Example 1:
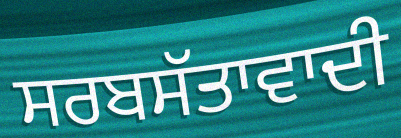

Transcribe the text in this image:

ਸਰਬਸੱਤਾਵਾਦੀ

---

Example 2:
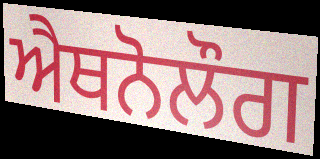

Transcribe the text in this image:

ਐਥਨੋਲੌਗ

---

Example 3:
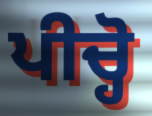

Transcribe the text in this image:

ਪੀਚ੍ਹੋ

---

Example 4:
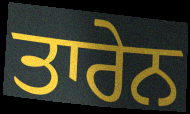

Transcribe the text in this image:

ਤਾਰੇਨ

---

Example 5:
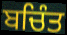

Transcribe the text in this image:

ਬਚਿੰਤ